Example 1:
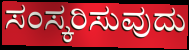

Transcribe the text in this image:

ಸಂಸ್ಕರಿಸುವುದು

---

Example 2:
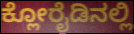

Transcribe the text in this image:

ಕ್ಲೋರೈಡಿನಲ್ಲಿ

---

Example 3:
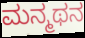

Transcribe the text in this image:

ಮನ್ಮಥನ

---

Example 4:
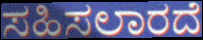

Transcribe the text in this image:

ಸಹಿಸಲಾರದೆ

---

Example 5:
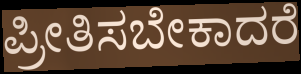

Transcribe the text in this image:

ಪ್ರೀತಿಸಬೇಕಾದರೆ